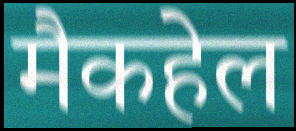
मैकहेल